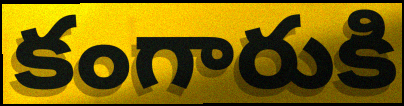
కంగారుకి